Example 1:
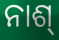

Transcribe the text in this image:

ନାଶ୍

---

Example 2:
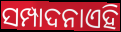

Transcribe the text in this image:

ସମ୍ପାଦନାଏହି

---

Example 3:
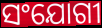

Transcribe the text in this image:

ସଂଯୋଗୀ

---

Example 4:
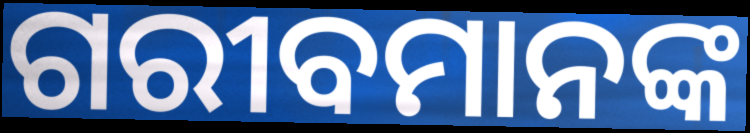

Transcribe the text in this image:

ଗରୀବମାନଙ୍କ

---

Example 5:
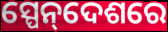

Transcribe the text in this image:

ସ୍ପେନ୍‌ଦେଶରେ